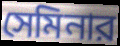
সেমিনার